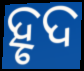
ହୃଦ